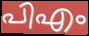
പിഎം